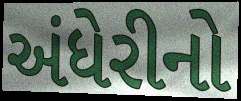
અંધેરીનો